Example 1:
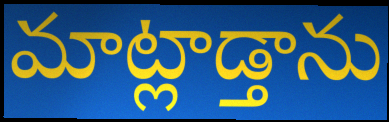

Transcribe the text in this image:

మాట్లాడ్తాను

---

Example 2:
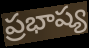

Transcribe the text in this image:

ప్రభాష్య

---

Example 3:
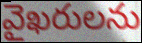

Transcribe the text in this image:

వైఖరులను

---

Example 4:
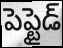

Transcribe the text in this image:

పెప్టైడ్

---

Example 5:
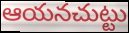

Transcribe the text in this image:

ఆయనచుట్టు